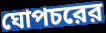
ঘোপচরের